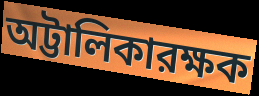
অট্টালিকারক্ষক